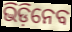
ଭିଡ଼ିନେବ